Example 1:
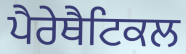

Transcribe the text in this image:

ਪੈਰੇਥੈਟਿਕਲ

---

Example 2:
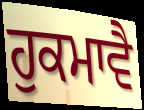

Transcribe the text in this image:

ਹੁਕਮਾਵੈ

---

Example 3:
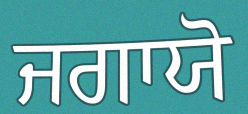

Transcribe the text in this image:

ਜਗਾਯੋ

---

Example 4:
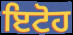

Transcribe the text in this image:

ਇਟੋਹ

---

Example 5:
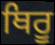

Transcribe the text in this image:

ਥਿਰੂ